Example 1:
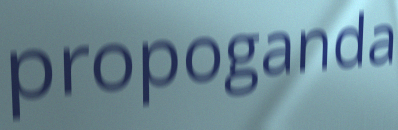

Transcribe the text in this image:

propoganda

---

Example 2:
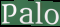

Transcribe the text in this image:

Palo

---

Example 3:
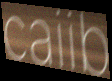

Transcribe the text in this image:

caiib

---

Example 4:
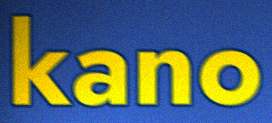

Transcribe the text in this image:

kano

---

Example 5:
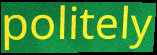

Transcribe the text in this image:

politely